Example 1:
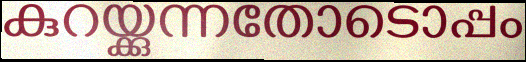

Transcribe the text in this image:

കുറയ്ക്കുന്നതോടൊപ്പം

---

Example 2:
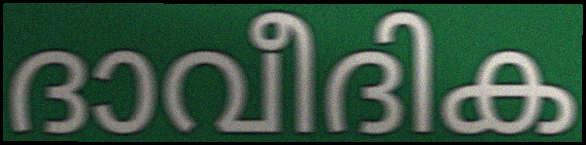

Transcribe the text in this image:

ദാവീദിക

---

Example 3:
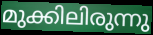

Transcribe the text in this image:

മുക്കിലിരുന്നു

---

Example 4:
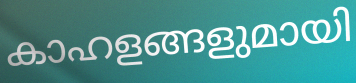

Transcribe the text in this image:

കാഹളങ്ങളുമായി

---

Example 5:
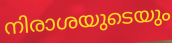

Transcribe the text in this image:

നിരാശയുടെയും